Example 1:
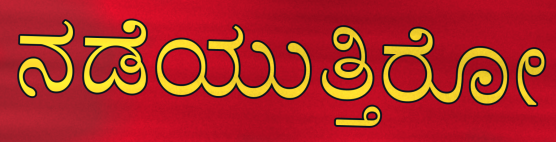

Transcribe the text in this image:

ನಡೆಯುತ್ತಿರೋ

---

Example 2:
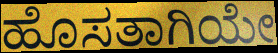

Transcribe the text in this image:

ಹೊಸತಾಗಿಯೇ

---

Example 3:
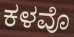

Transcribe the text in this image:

ಕಳವೊ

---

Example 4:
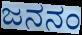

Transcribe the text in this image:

ಜನನಂ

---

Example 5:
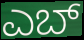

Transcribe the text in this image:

ಎಬ್